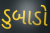
ડુબાડો